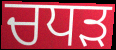
ਚਧੜ